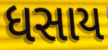
ધસાય